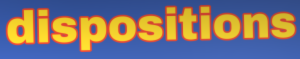
dispositions